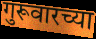
गुरूवारच्या